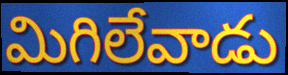
మిగిలేవాడు